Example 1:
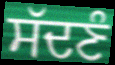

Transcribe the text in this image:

ਸੱਦਣੰ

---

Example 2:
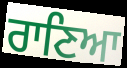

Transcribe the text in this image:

ਰਾਣਿਆ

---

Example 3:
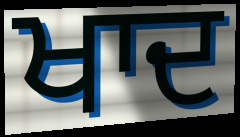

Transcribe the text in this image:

ਖਾਦ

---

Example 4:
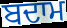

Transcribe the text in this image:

ਬਦਾਮ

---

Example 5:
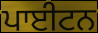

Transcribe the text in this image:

ਪਾਈਟਨ